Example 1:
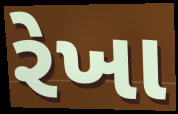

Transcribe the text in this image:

રેખા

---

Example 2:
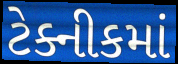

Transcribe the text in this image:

ટેક્નીકમાં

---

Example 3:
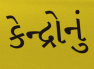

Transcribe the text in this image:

કેન્દ્રોનું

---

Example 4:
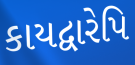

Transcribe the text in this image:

કાયદ્વારેપિ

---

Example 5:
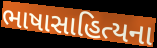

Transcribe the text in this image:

ભાષાસાહિત્યના